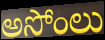
అసోంలు